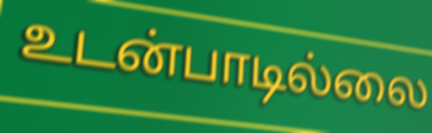
உடன்பாடில்லை